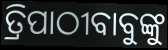
ତ୍ରିପାଠୀବାବୁଙ୍କୁ